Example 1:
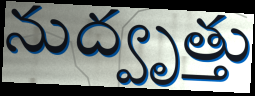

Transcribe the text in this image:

నుద్వృత్తు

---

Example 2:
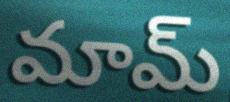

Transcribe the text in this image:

మామ్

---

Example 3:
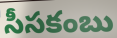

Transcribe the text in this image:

సీసకంబు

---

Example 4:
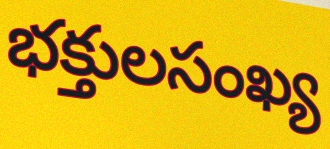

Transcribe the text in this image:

భక్తులసంఖ్య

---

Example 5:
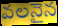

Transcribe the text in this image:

వలనైన